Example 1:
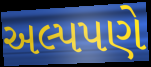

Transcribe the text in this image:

અલ્પપણે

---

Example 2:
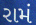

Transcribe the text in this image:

રામં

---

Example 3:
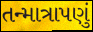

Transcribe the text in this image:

તન્માત્રાપણું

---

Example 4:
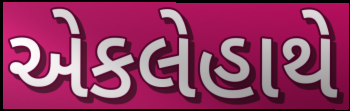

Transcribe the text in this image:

એકલેહાથે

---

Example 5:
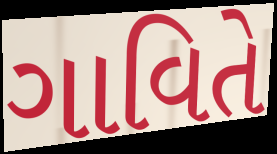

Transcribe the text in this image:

ગાવિતે